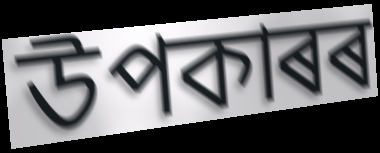
উপকাৰৰ